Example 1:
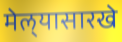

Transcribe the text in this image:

मेल्यासारखे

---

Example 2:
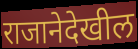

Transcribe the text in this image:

राजानेदेखील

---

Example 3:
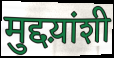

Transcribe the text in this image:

मुद्दय़ांशी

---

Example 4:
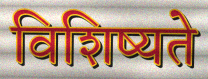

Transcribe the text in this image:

विशिष्यते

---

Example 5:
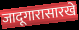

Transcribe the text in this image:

जादूगारासारखे